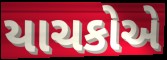
યાચકોએ